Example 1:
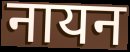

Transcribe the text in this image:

नायन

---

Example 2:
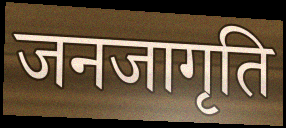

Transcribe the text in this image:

जनजागृति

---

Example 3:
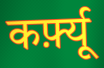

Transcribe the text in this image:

कर्फ़्यू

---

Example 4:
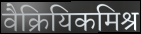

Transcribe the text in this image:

वैक्रियिकमिश्र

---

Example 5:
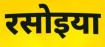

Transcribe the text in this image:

रसोइया